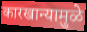
कारखान्यामुळे